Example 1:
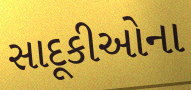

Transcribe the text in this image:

સાદૂકીઓના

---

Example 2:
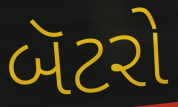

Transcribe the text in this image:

બૅટરો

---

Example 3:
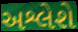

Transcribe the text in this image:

અશ્લેશે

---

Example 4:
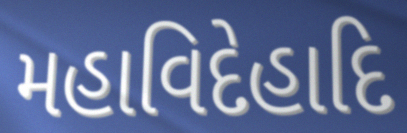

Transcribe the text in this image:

મહાવિદેહાદિ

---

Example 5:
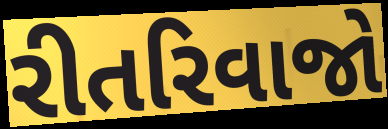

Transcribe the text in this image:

રીતરિવાજો